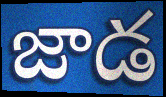
జాడ